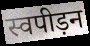
स्वपीड़न